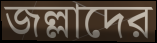
জল্লাদের